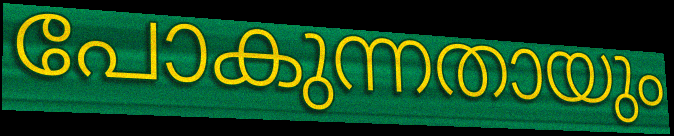
പോകുന്നതായും